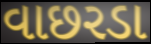
વાછરડા